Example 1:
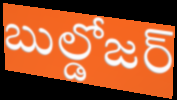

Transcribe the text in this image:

బుల్డోజర్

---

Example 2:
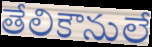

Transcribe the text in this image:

తేలికౌనులే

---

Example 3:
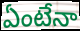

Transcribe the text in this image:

ఏంటేనా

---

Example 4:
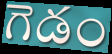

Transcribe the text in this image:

గెడం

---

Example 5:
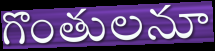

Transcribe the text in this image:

గొంతులనూ